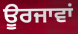
ਊਰਜਾਵਾਂ